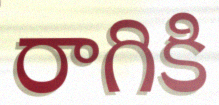
రాగికి